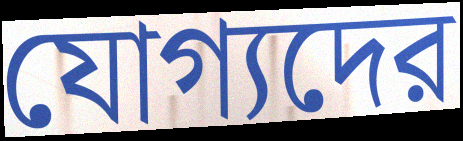
যোগ্যদের